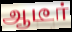
ஆடீர்